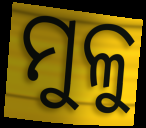
ମୁଳୁ